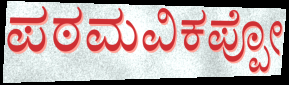
ಪಠಮವಿಕಪ್ಪೋ